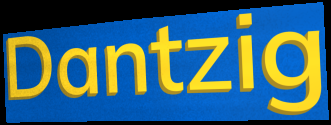
Dantzig